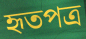
হৃতপত্র